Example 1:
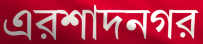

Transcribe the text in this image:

এরশাদনগর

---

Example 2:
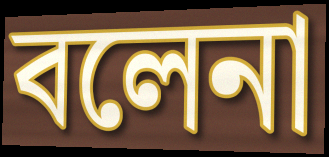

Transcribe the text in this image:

বলেনা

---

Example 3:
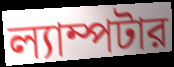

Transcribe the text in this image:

ল্যাম্পটার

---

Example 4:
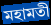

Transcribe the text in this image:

মহামতী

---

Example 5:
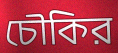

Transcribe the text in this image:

চৌকির